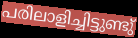
പരിലാളിച്ചിട്ടുണ്ടു്